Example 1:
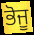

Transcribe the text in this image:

ਭੋਜੂ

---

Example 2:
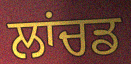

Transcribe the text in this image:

ਲਾਂਚਡ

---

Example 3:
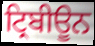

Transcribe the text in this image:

ਟ੍ਰਿਬੀਊਨ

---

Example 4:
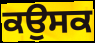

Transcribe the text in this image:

ਕਉਸਕ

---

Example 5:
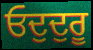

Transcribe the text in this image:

ਓਦੁਦੁਰੂ